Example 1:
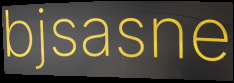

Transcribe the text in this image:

bjsasne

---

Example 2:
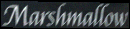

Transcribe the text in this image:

Marshmallow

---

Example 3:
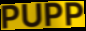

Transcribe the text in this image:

PUPP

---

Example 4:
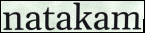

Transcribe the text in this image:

natakam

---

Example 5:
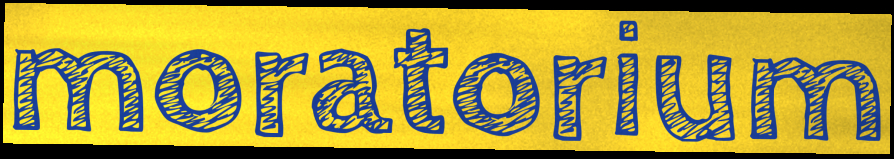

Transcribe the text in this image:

moratorium